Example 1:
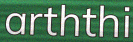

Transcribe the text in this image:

arththi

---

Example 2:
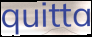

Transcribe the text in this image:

quitta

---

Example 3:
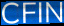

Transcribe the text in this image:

CFIN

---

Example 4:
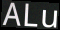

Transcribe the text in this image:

ALu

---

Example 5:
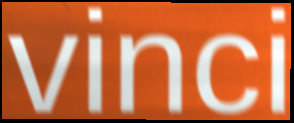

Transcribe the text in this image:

vinci